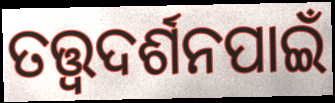
ତତ୍ତ୍ଵଦର୍ଶନପାଇଁ